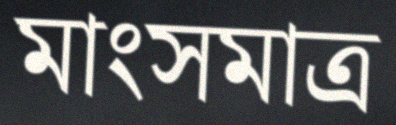
মাংসমাত্র